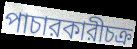
পাচারকারীচক্র